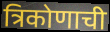
त्रिकोणाची